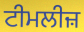
ਟੀਮਲੀਜ਼